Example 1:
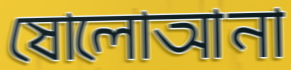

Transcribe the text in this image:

ষোলোআনা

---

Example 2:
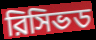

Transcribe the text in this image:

রিসিভড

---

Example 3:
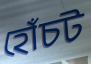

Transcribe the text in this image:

হোঁচট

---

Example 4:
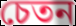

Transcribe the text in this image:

চেতন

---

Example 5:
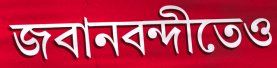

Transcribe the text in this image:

জবানবন্দীতেও